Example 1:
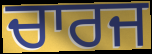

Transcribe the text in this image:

ਚਾਰਜ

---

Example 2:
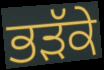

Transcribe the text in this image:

ਭੜੱਕੇ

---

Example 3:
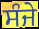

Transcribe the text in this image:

ਸੰਜੇ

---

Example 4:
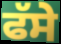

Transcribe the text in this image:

ਫੱਸੇ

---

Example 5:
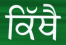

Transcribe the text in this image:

ਕਿੱਥੈ